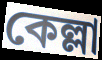
কেল্লা